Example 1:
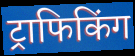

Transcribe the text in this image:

ट्राफिकिंग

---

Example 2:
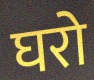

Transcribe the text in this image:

घरो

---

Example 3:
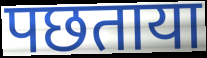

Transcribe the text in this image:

पछताया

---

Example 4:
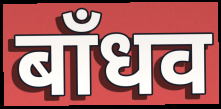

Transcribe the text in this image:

बाँधव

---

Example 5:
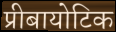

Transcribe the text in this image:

प्रीबायोटिक